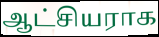
ஆட்சியராக